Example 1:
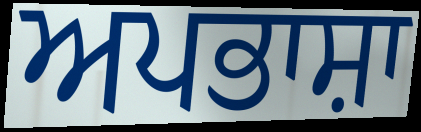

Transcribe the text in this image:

ਅਪਭਾਸ਼ਾ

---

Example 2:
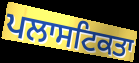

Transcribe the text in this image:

ਪਲਾਸਟਿਕਤਾ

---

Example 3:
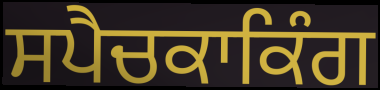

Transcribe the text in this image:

ਸਪੈਚਕਾਕਿੰਗ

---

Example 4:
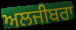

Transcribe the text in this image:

ਅਲਜੀਬਰਾ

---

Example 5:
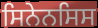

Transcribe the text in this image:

ਸਿਨੇਨਸਿਸ